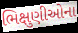
ભિક્ષુણીઓના